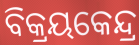
ବିକ୍ରୟକେନ୍ଦ୍ର